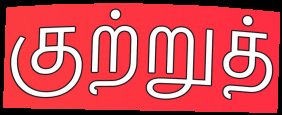
குற்றுத்